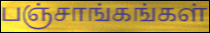
பஞ்சாங்கங்கள்